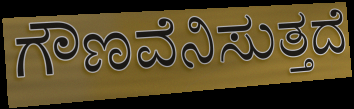
ಗೌಣವೆನಿಸುತ್ತದೆ